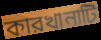
কারখানাটি